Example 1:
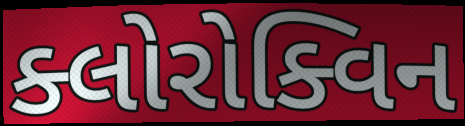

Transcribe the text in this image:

ક્લોરોક્વિન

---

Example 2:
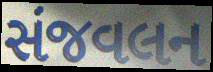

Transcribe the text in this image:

સંજવલન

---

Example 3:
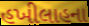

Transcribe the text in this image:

હખીલાહના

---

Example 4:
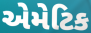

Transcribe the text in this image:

એમેટિક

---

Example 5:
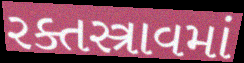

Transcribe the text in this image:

રક્તસ્ત્રાવમાં